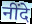
नींदे